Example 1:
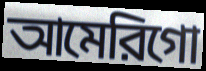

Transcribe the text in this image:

আমেরিগো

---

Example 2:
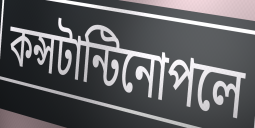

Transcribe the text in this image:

কন্সটান্টিনোপলে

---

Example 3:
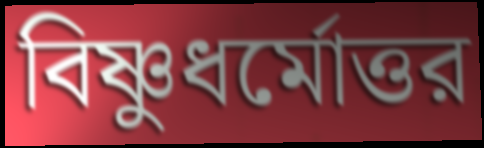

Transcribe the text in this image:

বিষ্ণুধর্মোত্তর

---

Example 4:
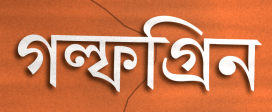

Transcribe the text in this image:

গল্ফগ্রিন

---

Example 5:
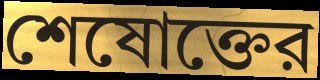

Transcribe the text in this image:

শেষোক্তের